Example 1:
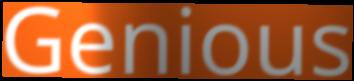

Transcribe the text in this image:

Genious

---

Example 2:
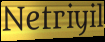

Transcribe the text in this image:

Netriyil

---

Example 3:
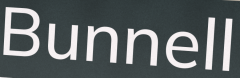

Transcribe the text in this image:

Bunnell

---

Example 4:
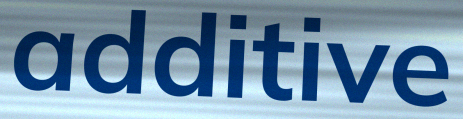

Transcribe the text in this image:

additive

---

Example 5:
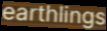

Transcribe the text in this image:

earthlings